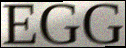
EGG